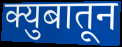
क्युबातून